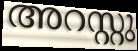
അറസ്റ്റു